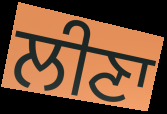
ਲੀਣਾ